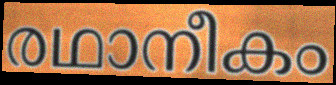
രഥാനീകം